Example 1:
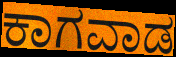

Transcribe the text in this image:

ಕಾಗವಾಡ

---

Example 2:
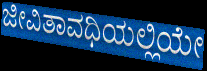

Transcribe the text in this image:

ಜೀವಿತಾವಧಿಯಲ್ಲಿಯೇ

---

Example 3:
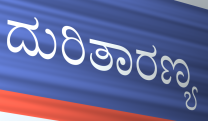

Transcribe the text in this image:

ದುರಿತಾರಣ್ಯ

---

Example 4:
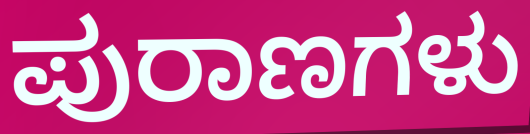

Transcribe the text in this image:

ಪುರಾಣಗಳು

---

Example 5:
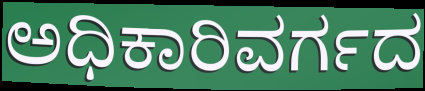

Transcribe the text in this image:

ಅಧಿಕಾರಿವರ್ಗದ